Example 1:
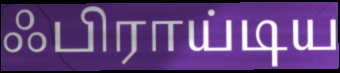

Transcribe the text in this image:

ஃபிராய்டிய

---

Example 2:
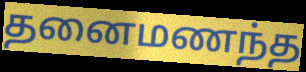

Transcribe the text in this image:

தனைமணந்த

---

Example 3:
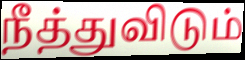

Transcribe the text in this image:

நீத்துவிடும்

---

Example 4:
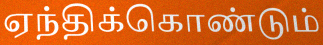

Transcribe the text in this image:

ஏந்திக்கொண்டும்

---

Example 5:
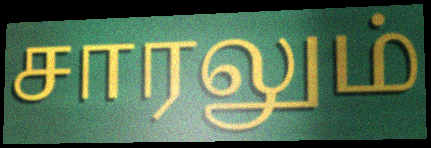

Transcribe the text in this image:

சாரலும்